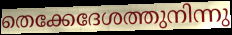
തെക്കേദേശത്തുനിന്നു